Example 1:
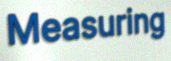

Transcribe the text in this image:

Measuring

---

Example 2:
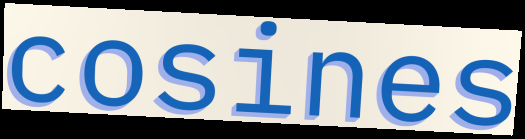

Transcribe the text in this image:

cosines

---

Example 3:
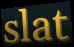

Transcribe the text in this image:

slat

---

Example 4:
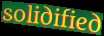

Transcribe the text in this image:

solidified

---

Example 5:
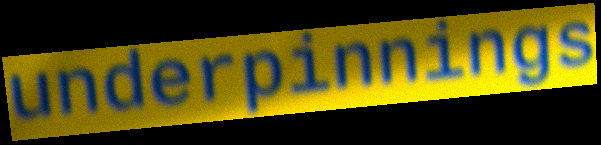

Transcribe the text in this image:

underpinnings